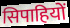
सिपाहियों